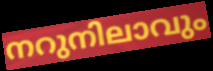
നറുനിലാവും